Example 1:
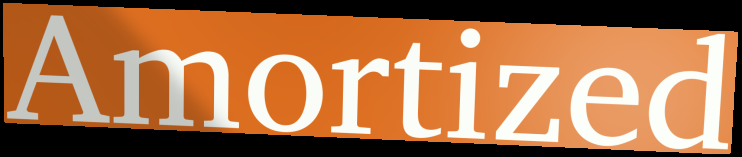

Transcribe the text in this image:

Amortized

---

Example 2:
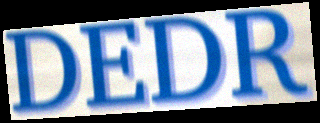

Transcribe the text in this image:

DEDR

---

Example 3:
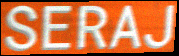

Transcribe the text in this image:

SERAJ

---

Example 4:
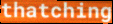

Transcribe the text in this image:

thatching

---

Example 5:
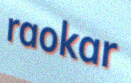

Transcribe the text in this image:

raokar